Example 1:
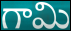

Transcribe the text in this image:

గామి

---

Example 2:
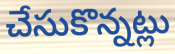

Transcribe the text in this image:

చేసుకొన్నట్లు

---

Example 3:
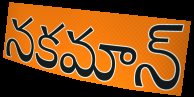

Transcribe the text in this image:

నకమాన్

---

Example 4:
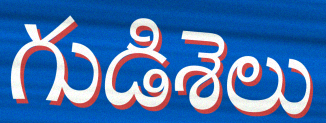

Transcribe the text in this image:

గుడిశెలు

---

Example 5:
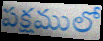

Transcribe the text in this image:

పక్షములో